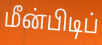
மீன்பிடிப்